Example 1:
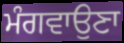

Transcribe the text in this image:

ਮੰਗਵਾਉਣਾ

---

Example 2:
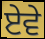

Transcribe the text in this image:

ਏਵੇ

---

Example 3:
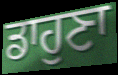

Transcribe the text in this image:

ਡਾਹੁਣਾ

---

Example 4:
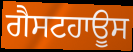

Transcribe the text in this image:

ਗੈਸਟਹਾਊਸ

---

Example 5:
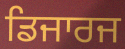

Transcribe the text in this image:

ਡਿਜਾਰਜ